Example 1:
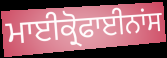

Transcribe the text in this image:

ਮਾਈਕ੍ਰੋਫਾਈਨਾਂਸ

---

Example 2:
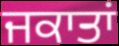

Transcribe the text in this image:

ਜਕਾਤਾਂ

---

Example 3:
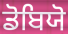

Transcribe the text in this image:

ਡੋਬਿਯੋ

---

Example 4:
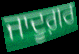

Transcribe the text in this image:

ਜਾਦੂਗ਼ਰ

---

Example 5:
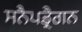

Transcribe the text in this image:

ਸਨੈਪਡ੍ਰੈਗਨ